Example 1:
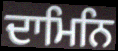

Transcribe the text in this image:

ਦਾਮਿਨਿ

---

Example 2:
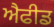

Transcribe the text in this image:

ਐਫੀਡ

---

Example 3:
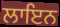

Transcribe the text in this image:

ਲਾਇਨ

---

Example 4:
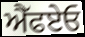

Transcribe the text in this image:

ਐੱਫਏਓ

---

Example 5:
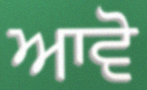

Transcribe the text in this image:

ਆਵੋ